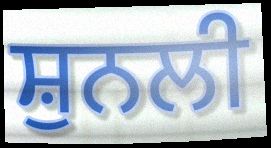
ਸ਼ੁਨਲੀ